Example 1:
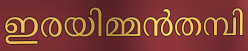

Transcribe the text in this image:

ഇരയിമ്മൻതമ്പി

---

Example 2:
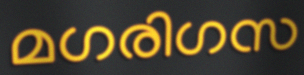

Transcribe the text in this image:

മഗരിഗസ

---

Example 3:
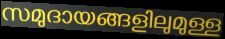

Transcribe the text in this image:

സമുദായങ്ങളിലുമുള്ള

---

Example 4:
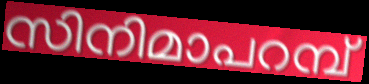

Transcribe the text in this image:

സിനിമാപറമ്പ്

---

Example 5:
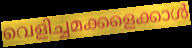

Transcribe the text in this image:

വെളിച്ചമക്കളെക്കാൾ